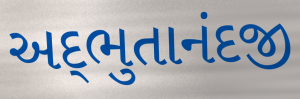
અદ્‌ભુતાનંદજી